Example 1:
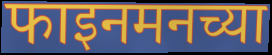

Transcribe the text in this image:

फाइनमनच्या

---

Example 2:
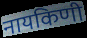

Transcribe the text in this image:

नायकिणी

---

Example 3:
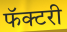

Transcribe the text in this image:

फॅक्टरी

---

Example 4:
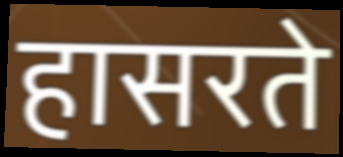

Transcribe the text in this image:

हासरते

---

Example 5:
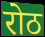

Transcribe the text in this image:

रोठ